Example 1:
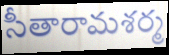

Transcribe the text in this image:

సీతారామశర్మ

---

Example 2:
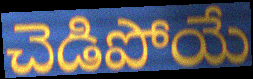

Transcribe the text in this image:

చెడిపోయే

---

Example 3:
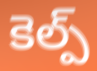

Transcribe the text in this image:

కెల్ప్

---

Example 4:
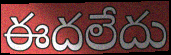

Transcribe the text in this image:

ఈదలేదు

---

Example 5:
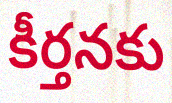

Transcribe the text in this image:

కీర్తనకు